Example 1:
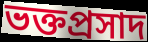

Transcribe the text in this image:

ভক্তপ্রসাদ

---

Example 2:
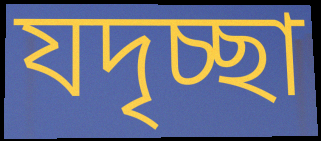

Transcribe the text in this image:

যদৃচ্ছা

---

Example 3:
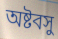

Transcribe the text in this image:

অষ্টবসু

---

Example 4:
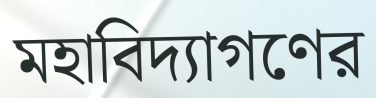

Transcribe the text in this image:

মহাবিদ্যাগণের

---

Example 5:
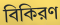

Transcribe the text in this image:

বিকিরণ